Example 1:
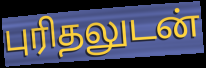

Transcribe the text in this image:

புரிதலுடன்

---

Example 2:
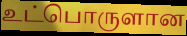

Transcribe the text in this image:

உட்பொருளான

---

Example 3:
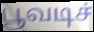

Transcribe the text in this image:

பூவடிச்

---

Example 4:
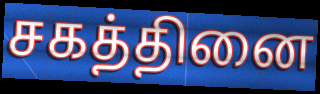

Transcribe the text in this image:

சகத்தினை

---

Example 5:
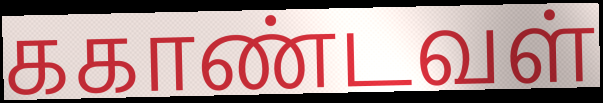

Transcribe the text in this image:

ககாண்டவள்